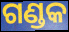
ଗଣ୍ଡକ